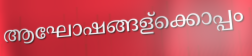
ആഘോഷങ്ങള്ക്കൊപ്പം